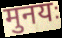
मुनयः